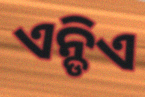
ଏନ୍ଡିଏ